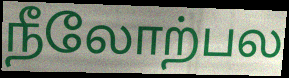
நீலோற்பல